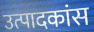
उत्पादकांस